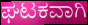
ಘಟಕವಾಗಿ